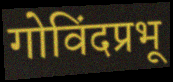
गोविंदप्रभू